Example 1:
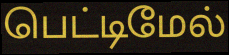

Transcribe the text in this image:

பெட்டிமேல்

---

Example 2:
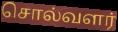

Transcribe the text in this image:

சொல்வளர்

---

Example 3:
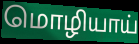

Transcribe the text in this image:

மொழியாய்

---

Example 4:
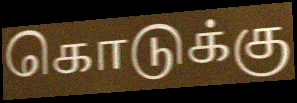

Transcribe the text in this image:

கொடுக்கு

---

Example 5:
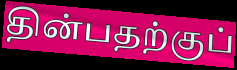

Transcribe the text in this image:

தின்பதற்குப்